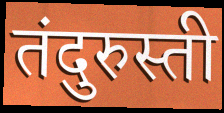
तंदुरुस्ती